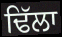
ਢਿੱਲਾ